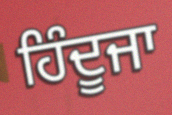
ਹਿੰਦੂਜਾ